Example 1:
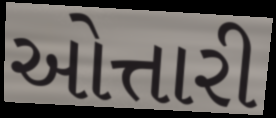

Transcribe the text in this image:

ઓત્તારી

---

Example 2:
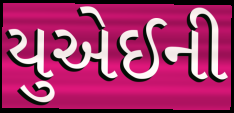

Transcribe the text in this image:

યુએઈની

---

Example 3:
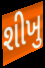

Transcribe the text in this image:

શીખુ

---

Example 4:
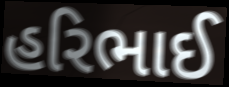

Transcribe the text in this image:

હરિભાઈ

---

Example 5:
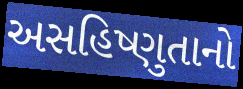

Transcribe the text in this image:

અસહિષ્ણુતાનો